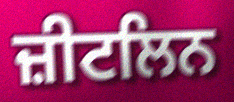
ਜ਼ੀਟਲਿਨ